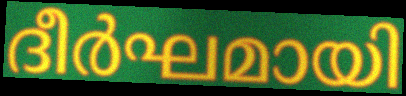
ദീർഘമായി